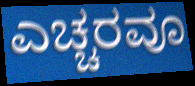
ಎಚ್ಚರವೂ